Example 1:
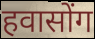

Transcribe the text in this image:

हवासोंग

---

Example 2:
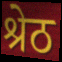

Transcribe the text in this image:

श्रेठ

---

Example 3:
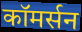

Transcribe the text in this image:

कॉमर्सन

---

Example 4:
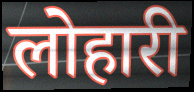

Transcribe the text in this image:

लोहारी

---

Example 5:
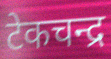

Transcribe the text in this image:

टेकचन्द्र